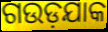
ଗଉଡ଼ଯାକ